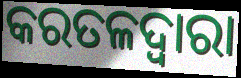
କରତଳଦ୍ଵାରା